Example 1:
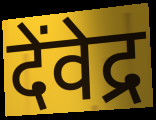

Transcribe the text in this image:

देंवेद्र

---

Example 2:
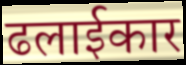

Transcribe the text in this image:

ढलाईकार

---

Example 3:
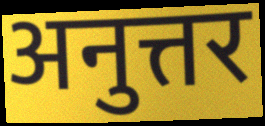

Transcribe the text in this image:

अनुत्तर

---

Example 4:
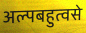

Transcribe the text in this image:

अल्पबहुत्वसे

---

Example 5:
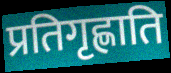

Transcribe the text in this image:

प्रतिगृह्णाति